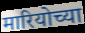
मारियोच्या